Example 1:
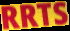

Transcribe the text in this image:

RRTS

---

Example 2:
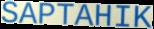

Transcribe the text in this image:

SAPTAHIK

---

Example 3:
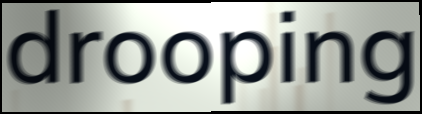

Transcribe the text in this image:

drooping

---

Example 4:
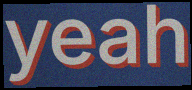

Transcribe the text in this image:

yeah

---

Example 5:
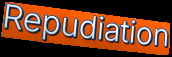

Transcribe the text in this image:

Repudiation